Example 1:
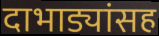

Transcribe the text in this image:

दाभाड्यांसह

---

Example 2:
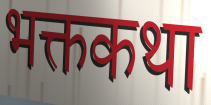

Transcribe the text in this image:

भक्तकथा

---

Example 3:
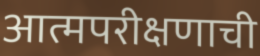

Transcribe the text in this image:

आत्मपरीक्षणाची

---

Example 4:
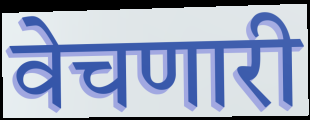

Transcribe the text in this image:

वेचणारी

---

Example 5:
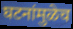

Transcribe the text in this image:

घटनांमुळेच